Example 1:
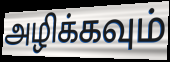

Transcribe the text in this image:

அழிக்கவும்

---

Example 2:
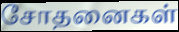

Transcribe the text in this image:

சோதனைகள்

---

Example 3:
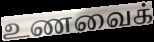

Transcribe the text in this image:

உணவைக்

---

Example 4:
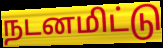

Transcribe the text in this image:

நடனமிட்டு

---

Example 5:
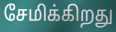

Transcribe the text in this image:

சேமிக்கிறது